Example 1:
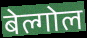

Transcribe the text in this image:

बेल्गोल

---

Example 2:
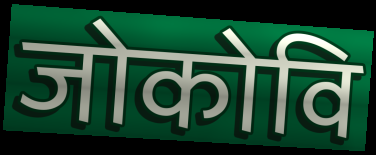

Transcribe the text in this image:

जोकोवि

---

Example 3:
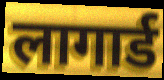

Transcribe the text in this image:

लागार्ड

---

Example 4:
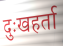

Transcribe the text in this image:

दुःखहर्ता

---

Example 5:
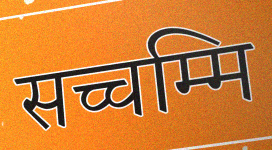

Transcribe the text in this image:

सच्चम्मि